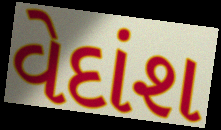
વેદાંશ